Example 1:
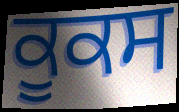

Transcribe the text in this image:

ਕੂਕਸ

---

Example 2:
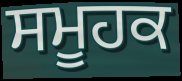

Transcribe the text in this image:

ਸਮੂਹਕ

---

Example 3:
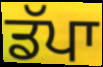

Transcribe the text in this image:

ਡੱਪਾ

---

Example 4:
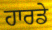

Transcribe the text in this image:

ਹਾਰਡੇ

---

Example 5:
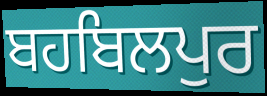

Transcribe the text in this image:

ਬਹਬਿਲਪੁਰ